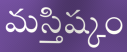
మస్తిష్కం